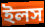
ইলস